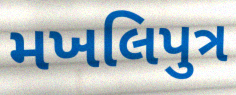
મખલિપુત્ર